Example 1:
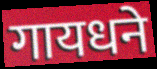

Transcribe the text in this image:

गायधने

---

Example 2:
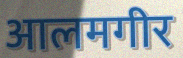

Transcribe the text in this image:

आलमगीर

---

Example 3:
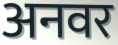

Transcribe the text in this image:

अनवर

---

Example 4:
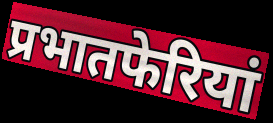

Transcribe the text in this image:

प्रभातफेरियां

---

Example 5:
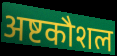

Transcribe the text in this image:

अष्टकौशल